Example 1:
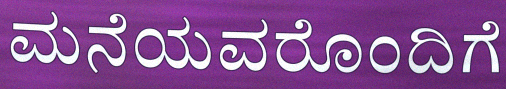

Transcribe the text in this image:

ಮನೆಯವರೊಂದಿಗೆ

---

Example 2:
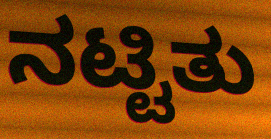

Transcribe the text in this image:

ನಟ್ಟಿತು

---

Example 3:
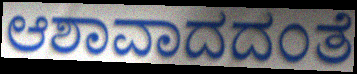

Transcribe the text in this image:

ಆಶಾವಾದದಂತೆ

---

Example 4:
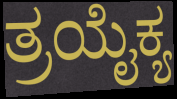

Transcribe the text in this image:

ತ್ರಯೈಕ್ಯ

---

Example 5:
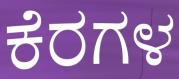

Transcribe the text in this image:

ಕೆರಗಳ